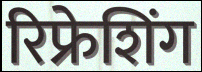
रिफ्रेशिंग